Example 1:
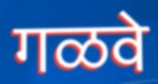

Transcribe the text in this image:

गळवे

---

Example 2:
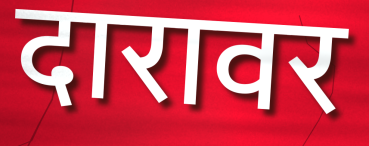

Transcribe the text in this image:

दारावर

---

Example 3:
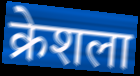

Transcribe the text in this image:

क्रेशला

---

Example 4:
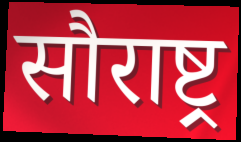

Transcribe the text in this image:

सौराष्ट्र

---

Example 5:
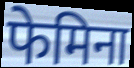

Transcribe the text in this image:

फेमिना